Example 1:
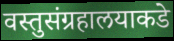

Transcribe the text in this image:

वस्तुसंग्रहालयाकडे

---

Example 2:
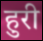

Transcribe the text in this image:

हुरी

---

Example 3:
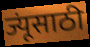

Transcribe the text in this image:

ज्यूंसाठी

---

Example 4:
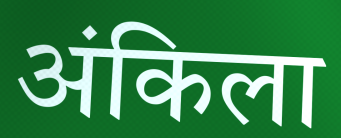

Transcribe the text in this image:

अंकिला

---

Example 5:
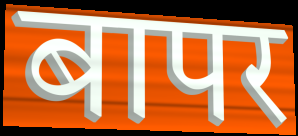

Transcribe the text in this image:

बापर